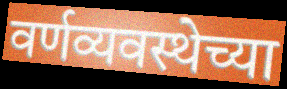
वर्णव्यवस्थेच्या